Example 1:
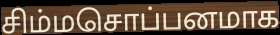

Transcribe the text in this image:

சிம்மசொப்பனமாக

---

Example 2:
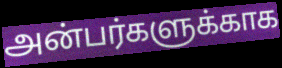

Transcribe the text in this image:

அன்பர்களுக்காக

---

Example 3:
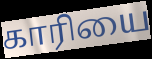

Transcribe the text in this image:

காரியை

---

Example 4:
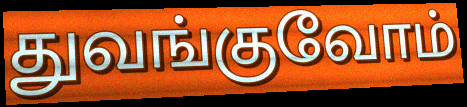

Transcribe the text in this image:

துவங்குவோம்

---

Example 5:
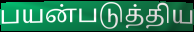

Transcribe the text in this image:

பயன்படுத்திய